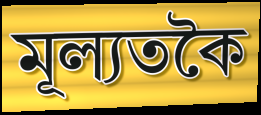
মূল্যতকৈ